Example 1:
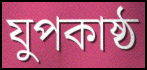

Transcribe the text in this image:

যুপকাষ্ঠ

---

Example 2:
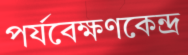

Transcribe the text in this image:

পর্যবেক্ষণকেন্দ্র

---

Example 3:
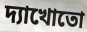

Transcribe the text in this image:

দ্যাখোতো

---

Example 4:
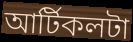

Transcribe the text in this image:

আর্টিকলটা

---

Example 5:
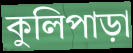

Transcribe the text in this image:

কুলিপাড়া